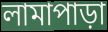
লামাপাড়া